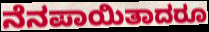
ನೆನಪಾಯಿತಾದರೂ